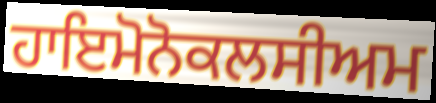
ਹਾਇਮੋਨੋਕਲਸੀਅਮ